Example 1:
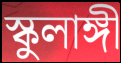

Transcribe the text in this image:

স্কুলাঙ্গী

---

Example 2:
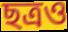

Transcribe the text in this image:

ছত্রও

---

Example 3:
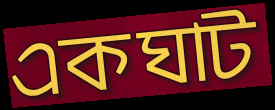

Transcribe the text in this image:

একঘাট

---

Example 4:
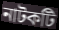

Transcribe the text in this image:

নাটকটি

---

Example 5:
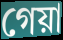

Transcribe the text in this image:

গেয়া